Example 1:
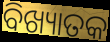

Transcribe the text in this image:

ବିଖ୍ୟାତକ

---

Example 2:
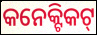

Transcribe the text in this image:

କନେକ୍ଟିକଟ୍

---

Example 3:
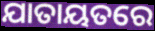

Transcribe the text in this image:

ଯାତାୟତରେ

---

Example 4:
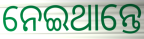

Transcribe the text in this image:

ନେଇଥାନ୍ତେ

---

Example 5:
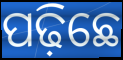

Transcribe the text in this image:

ପଢ଼ିଛେ